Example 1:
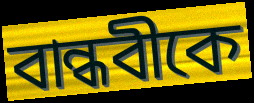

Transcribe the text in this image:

বান্ধবীকে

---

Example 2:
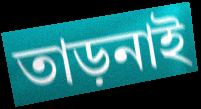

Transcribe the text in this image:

তাড়নাই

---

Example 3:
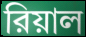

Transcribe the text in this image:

রিয়াল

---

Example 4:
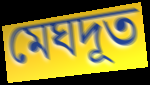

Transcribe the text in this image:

মেঘদূত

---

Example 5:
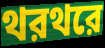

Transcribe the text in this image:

থরথরে